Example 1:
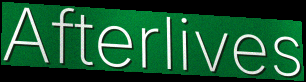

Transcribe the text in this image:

Afterlives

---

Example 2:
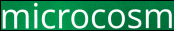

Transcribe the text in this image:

microcosm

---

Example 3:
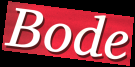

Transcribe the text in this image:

Bode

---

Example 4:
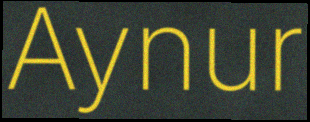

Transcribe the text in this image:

Aynur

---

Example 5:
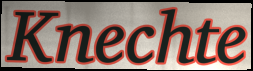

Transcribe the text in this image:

Knechte